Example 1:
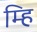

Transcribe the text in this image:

म्हि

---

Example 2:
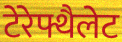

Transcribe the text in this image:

टेरेफ्थैलेट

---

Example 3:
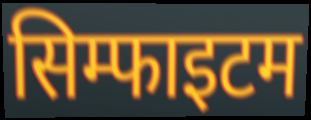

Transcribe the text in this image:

सिम्फाइटम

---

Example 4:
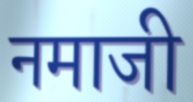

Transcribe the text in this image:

नमाजी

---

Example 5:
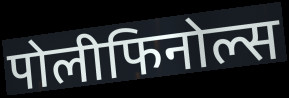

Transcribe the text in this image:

पोलीफिनोल्स